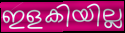
ഇളകിയില്ല